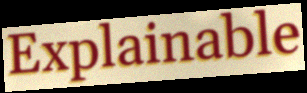
Explainable